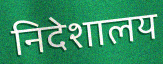
निदेशालय